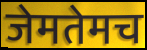
जेमतेमच